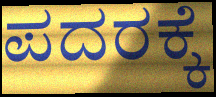
ಪದರಕ್ಕೆ